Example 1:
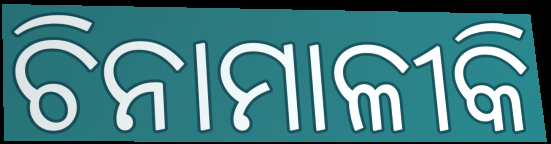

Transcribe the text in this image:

ଚିନାମାଳୀକି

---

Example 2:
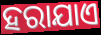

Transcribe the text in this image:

ହରାଯାଏ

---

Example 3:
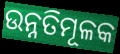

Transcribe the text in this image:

ଉନ୍ନତିମୂଳକ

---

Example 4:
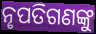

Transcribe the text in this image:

ନୃପତିଗଣଙ୍କୁ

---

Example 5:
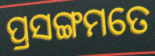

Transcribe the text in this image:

ପ୍ରସଙ୍ଗମତେ